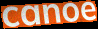
canoe